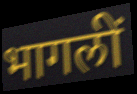
भागलीं